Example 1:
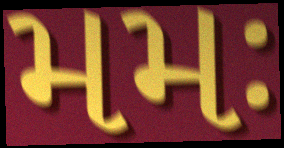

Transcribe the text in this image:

મમઃ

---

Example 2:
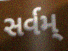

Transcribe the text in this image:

સર્વમ્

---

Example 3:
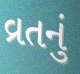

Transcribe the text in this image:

વ્રતનું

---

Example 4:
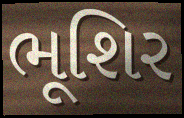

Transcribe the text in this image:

ભૂશિર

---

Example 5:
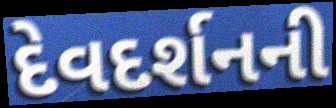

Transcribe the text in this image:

દેવદર્શનની